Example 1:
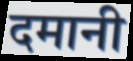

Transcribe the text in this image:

दमानी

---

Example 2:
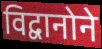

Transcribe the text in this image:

विद्वानोने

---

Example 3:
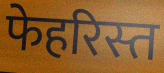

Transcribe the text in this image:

फेहरिस्‍त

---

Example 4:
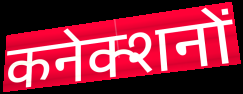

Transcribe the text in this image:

कनेक्शनों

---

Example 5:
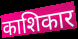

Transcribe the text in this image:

काशिकार